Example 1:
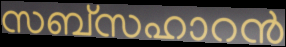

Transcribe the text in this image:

സബ്സഹാറൻ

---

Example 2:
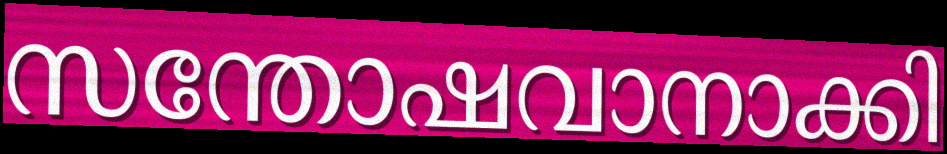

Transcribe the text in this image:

സന്തോഷവാനാക്കി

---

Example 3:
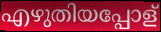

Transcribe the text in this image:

എഴുതിയപ്പോള്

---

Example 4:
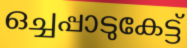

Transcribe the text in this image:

ഒച്ചപ്പാടുകേട്ട്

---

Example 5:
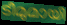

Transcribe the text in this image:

ടീമുമായി